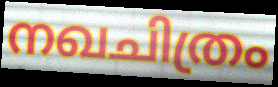
നഖചിത്രം